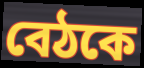
বেঠকে